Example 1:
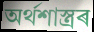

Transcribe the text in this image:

অৰ্থশাস্ত্ৰৰ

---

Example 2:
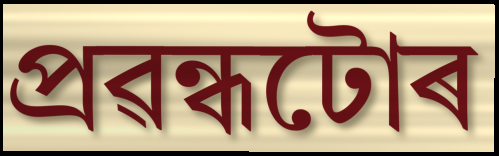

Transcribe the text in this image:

প্ৰৱন্ধটোৰ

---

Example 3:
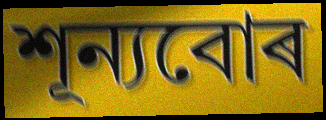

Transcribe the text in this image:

শূন্যবোৰ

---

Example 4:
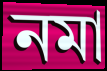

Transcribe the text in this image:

নমা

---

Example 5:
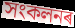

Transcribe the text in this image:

সংকলনৰ